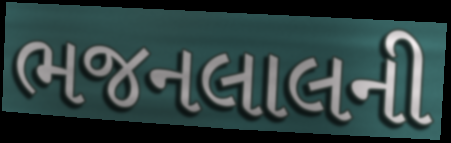
ભજનલાલની